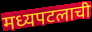
मध्यपटलाची